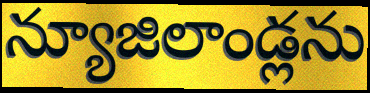
న్యూజిలాండ్లను